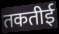
तकतीई